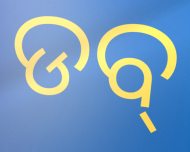
ଡବ୍